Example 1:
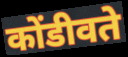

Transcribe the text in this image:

कोंडीवते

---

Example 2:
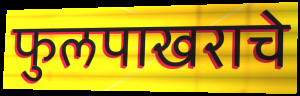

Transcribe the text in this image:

फुलपाखराचे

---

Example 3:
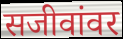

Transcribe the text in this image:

सजीवांवर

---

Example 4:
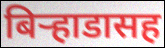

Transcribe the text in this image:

बिऱ्हाडासह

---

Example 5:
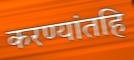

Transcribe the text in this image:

करण्यांतहि